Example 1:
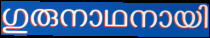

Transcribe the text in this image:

ഗുരുനാഥനായി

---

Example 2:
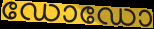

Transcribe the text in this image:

ഡോഡോ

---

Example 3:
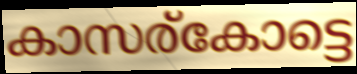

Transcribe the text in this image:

കാസര്കോട്ടെ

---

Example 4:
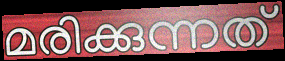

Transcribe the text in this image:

മരിക്കുന്നത്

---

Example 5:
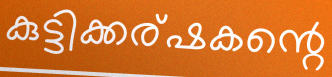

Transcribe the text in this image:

കുട്ടിക്കര്ഷകന്റെ